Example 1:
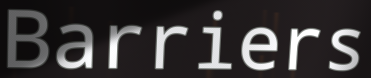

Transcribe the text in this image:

Barriers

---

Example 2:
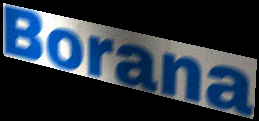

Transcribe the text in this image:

Borana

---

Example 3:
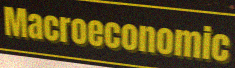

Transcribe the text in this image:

Macroeconomic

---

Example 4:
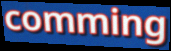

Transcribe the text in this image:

comming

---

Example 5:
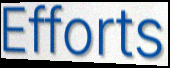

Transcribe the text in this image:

Efforts